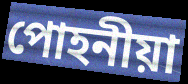
পোহনীয়া